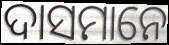
ଦାସମାନେ